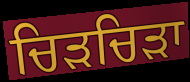
ਚਿੜਚਿੜਾ